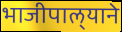
भाजीपाल्याने